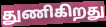
துணிகிறது